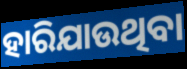
ହାରିଯାଉଥିବା